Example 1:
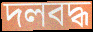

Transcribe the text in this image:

দলবদ্ধ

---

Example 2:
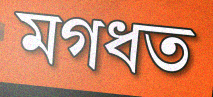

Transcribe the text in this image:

মগধত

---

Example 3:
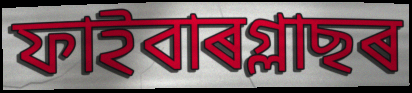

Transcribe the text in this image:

ফাইবাৰগ্লাছৰ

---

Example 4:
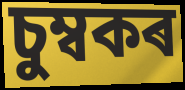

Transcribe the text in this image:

চুম্বকৰ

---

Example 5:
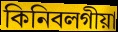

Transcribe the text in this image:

কিনিবলগীয়া